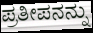
ಪ್ರತೀಪನನ್ನು